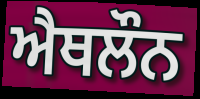
ਐਥਲੌਨ